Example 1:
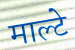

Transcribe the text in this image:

माल्टे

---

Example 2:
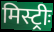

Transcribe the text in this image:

मिस्ट्रीः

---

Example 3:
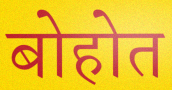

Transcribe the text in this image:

बोहोत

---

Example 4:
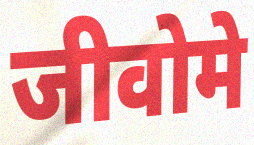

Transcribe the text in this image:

जीवोमे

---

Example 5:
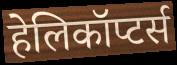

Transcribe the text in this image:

हेलिकॉप्टर्स